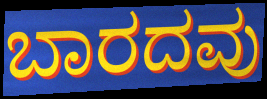
ಬಾರದವು